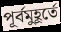
পূর্বমুহূর্তে